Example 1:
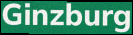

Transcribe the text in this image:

Ginzburg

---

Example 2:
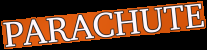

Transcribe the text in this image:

PARACHUTE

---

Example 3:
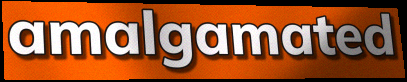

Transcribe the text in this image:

amalgamated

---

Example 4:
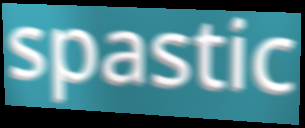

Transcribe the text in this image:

spastic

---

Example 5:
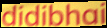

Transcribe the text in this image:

didibhai